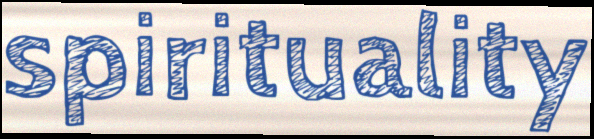
spirituality